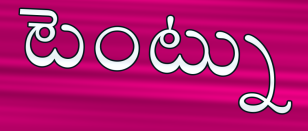
టెంట్ను